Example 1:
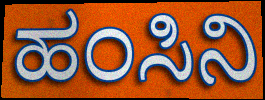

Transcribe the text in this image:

ಹಂಸಿನಿ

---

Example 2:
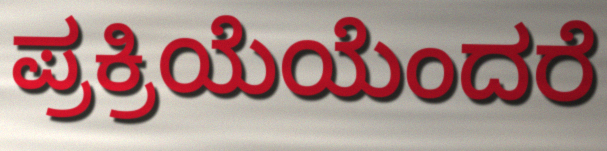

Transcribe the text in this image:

ಪ್ರಕ್ರಿಯೆಯೆಂದರೆ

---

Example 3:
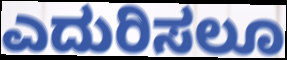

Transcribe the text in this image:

ಎದುರಿಸಲೂ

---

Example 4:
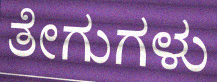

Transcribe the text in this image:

ತೇಗುಗಳು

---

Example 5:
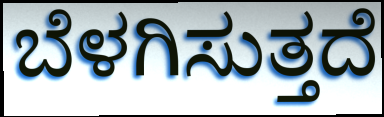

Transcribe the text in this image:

ಬೆಳಗಿಸುತ್ತದೆ